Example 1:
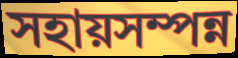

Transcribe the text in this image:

সহায়সম্পন্ন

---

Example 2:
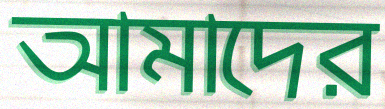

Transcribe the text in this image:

আমাদের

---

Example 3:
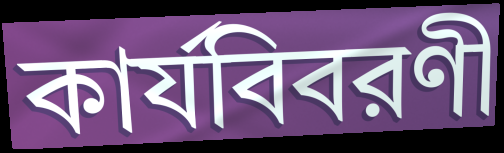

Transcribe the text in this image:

কার্যবিবরণী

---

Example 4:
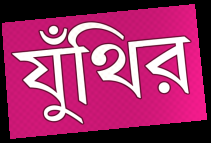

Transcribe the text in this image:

যুঁথির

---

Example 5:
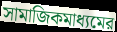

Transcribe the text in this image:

সামাজিকমাধ্যমের